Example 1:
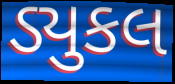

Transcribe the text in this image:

ડ્યુકલ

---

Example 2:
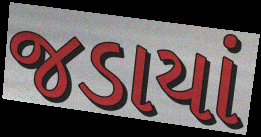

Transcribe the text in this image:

જડાયાં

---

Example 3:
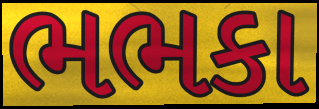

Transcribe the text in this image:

ભભકા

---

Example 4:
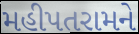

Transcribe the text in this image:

મહીપતરામને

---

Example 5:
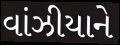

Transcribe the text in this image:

વાંઝીયાને